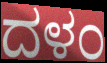
ದಳಂ